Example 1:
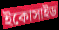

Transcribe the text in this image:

ইকোসাইড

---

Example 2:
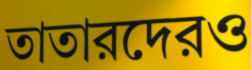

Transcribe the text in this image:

তাতারদেরও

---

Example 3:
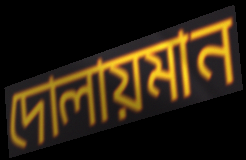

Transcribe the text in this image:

দোলায়মান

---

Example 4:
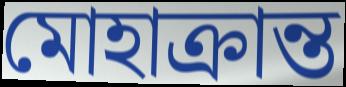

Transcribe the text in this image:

মোহাক্রান্ত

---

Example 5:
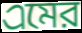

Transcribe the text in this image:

এমের